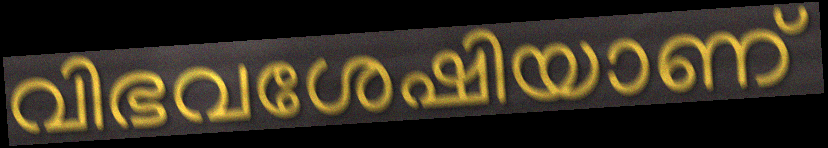
വിഭവശേഷിയാണ്